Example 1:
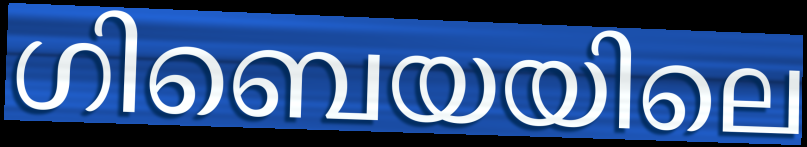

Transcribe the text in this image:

ഗിബെയയിലെ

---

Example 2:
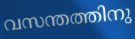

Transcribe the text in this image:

വസന്തത്തിനു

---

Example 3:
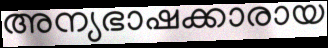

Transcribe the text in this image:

അന്യഭാഷക്കാരായ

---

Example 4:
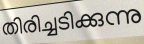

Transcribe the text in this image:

തിരിച്ചടിക്കുന്നു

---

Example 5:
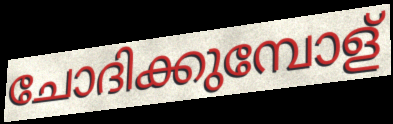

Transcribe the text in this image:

ചോദിക്കുമ്പോള്